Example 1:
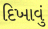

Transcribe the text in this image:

દિખાવું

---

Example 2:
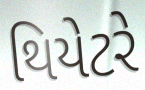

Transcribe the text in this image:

થિયેટરે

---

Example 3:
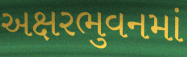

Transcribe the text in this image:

અક્ષરભુવનમાં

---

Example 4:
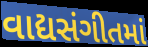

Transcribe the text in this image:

વાદ્યસંગીતમાં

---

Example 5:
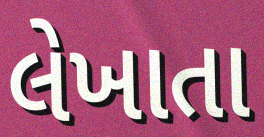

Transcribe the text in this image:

લેખાતા